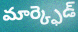
మార్క్ఫెడ్